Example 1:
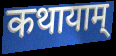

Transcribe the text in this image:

कथायाम्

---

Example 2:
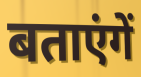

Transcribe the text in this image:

बताएंगें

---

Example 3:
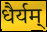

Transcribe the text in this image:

धैर्यम्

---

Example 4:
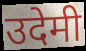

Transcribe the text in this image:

उदेमी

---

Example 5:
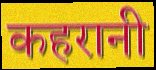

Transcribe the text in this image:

कहरानी